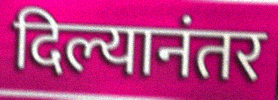
दिल्यानंतर